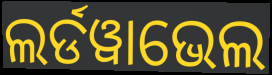
ଲର୍ଡୱାଭେଲ